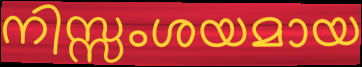
നിസ്സംശയമായ